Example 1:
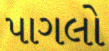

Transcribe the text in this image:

પાગલો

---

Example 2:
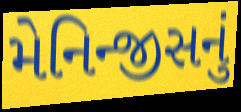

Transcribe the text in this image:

મેનિન્જીસનું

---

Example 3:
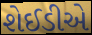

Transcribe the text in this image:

શેઈડીએ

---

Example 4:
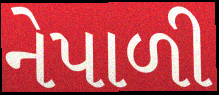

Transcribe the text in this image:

નેપાળી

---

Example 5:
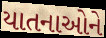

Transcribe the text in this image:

યાતનાઓને